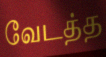
வேடத்த